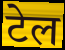
टेल